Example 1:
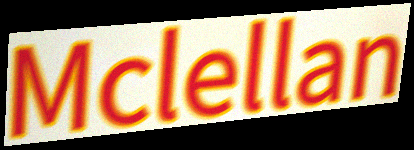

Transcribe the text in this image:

Mclellan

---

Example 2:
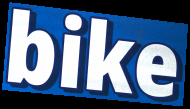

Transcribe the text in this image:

bike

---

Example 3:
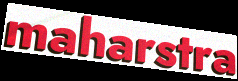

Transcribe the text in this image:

maharstra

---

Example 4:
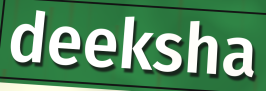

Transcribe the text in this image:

deeksha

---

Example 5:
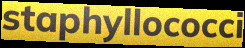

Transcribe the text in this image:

staphyllococci